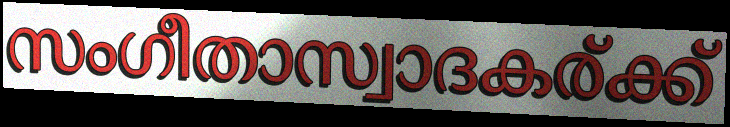
സംഗീതാസ്വാദകര്ക്ക്